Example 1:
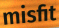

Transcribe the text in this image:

misfit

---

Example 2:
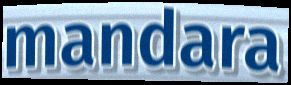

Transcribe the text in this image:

mandara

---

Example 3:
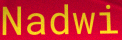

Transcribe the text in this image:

Nadwi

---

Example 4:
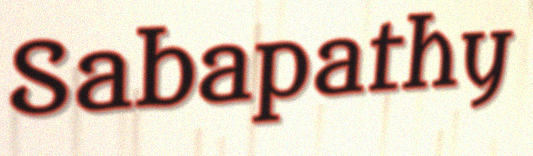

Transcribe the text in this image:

Sabapathy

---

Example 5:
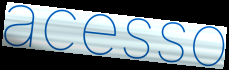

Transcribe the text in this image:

acesso